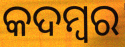
କଦମ୍ବର